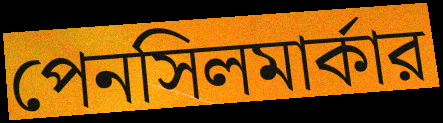
পেনসিলমার্কার